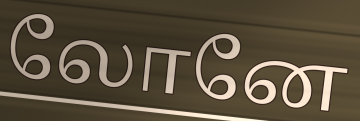
லோனே